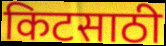
किटसाठी